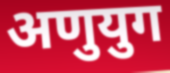
अणुयुग